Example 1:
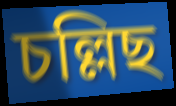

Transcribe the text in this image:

চল্লিছ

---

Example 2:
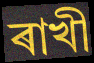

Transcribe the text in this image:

ৰাখী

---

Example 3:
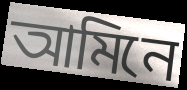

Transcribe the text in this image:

আমিনে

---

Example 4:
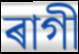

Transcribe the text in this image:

ৰাগী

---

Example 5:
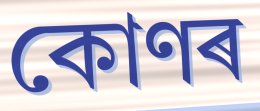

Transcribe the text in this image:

কোণৰ